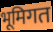
भूमिगत